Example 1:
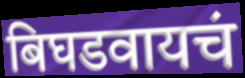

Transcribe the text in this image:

बिघडवायचं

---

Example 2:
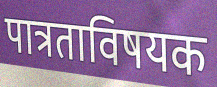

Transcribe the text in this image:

पात्रताविषयक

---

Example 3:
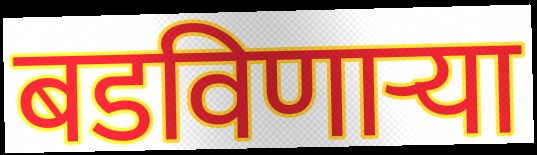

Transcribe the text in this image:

बडविणाऱ्या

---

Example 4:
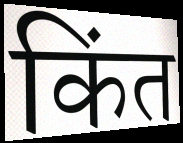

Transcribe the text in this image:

किंत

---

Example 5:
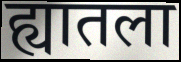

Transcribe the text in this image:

ह्यातला